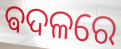
ଵଦଳରେ